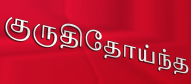
குருதிதோய்ந்த